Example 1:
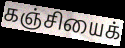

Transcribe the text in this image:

கஞ்சியைக்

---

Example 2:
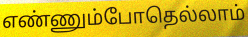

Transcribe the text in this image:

எண்ணும்போதெல்லாம்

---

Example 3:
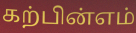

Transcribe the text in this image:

கற்பின்எம்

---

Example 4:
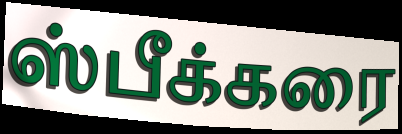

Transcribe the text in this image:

ஸ்பீக்கரை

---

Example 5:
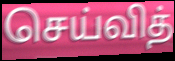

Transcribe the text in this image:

செய்வித்